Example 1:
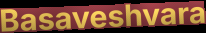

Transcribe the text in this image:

Basaveshvara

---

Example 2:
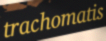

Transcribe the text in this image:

trachomatis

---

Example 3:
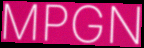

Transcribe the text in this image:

MPGN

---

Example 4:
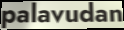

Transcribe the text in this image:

palavudan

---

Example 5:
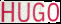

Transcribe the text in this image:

HUGO